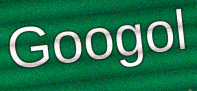
Googol